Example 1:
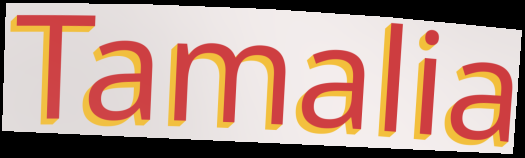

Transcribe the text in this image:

Tamalia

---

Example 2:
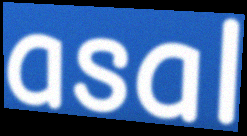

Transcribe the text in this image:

asal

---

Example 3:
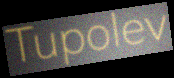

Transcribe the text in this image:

Tupolev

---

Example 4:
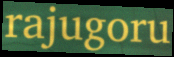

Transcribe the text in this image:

rajugoru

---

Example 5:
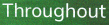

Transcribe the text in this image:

Throughout